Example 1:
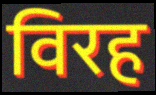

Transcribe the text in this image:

विरह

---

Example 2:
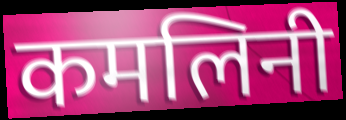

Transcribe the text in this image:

कमलिनी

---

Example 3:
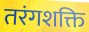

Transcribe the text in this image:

तरंगशक्ति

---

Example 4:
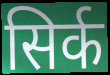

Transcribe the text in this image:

सिर्क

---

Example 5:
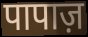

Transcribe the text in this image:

पापाज़